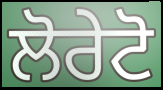
ਲੋਰੇਟੋ